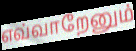
எவ்வாறேனும்